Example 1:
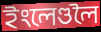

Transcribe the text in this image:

ইংলেণ্ডলৈ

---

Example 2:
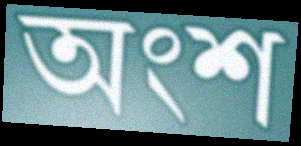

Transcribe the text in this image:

অংশ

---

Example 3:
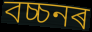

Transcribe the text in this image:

বচ্চনৰ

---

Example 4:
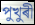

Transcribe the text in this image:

পুখুৰী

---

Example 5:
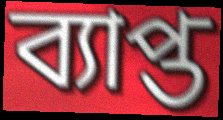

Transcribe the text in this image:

ব্যাপ্ত